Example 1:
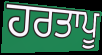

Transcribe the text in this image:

ਹਰਤਾਪੂ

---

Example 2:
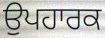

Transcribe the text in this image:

ਉਪਹਾਰਕ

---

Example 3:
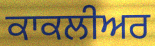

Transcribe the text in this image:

ਕਾਕਲੀਅਰ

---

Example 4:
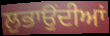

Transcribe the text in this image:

ਲੁਭਾਉਂਦੀਆਂ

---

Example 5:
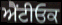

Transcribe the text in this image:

ਐਂਟੀਓਕ